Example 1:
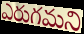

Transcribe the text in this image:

ఎరుగమని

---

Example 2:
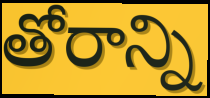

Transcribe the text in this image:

తోరాన్ని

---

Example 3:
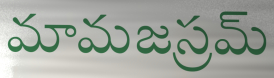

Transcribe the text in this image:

మామజస్రమ్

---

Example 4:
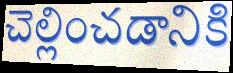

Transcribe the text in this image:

చెల్లించడానికి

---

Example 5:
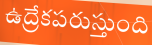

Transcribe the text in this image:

ఉద్రేకపరుస్తుంది